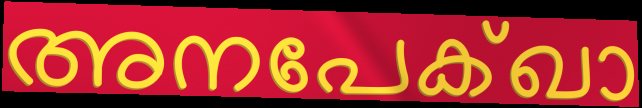
അനപേക്ഖാ